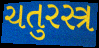
ચતુરસ્ત્ર